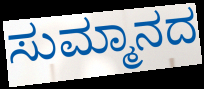
ಸುಮ್ಮಾನದ